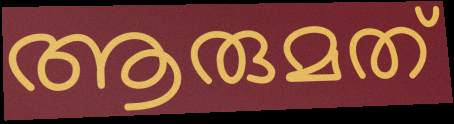
ആരുമത്